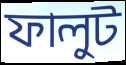
ফালুট